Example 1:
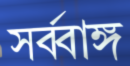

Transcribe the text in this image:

সর্ব্বাঙ্গ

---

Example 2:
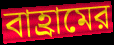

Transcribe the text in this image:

বাহ্রামের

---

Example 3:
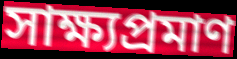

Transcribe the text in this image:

সাক্ষ্যপ্রমাণ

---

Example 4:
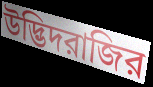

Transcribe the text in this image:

উদ্ভিদরাজির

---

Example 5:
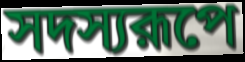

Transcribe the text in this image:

সদস্যরূপে